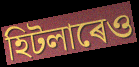
হিটলাৰেও